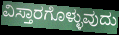
ವಿಸ್ತಾರಗೊಳ್ಳುವುದು